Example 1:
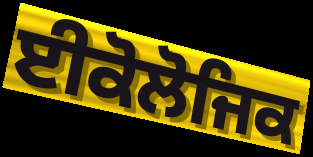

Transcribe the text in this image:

ਈਕੋਲੋਜਿਕ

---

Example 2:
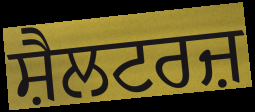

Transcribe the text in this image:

ਸ਼ੈਲਟਰਜ਼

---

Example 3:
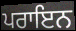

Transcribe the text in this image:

ਪਰਾਇਨ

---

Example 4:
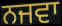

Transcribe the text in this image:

ਨਜਵਾ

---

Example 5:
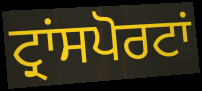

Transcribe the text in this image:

ਟ੍ਰਾਂਸਪੋਰਟਾਂ